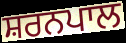
ਸ਼ਰਨਪਾਲ